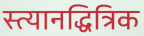
स्त्यानद्धित्रिक